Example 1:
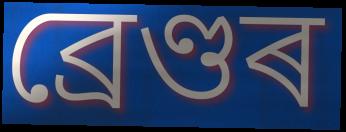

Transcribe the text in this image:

ব্ৰেণ্ডৰ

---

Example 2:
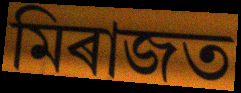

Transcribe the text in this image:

মিৰাজত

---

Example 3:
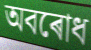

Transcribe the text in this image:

অবৰোধ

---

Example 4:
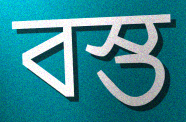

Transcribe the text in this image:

বস্ত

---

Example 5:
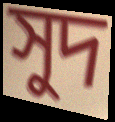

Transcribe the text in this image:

সুদ